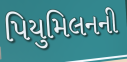
પિયુમિલનની